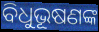
ବିଧୁଭୂଷଣଙ୍କ